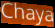
Chaya